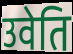
उवेति